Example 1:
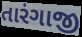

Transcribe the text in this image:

તારંગાજી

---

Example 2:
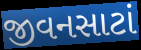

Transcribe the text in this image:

જીવનસાટાં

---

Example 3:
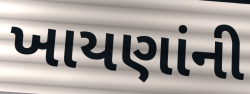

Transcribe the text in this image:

ખાયણાંની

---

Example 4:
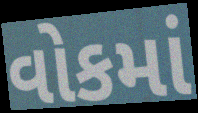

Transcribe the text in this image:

વોકમાં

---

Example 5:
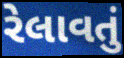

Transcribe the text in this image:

રેલાવતું